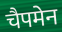
चैपमेन